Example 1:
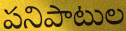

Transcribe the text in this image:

పనిపాటుల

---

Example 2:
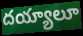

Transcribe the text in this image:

దయ్యాలూ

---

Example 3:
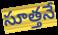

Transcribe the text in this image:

సూత్తనే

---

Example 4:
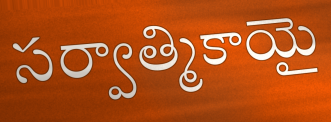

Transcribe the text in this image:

సర్వాత్మికాయై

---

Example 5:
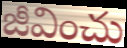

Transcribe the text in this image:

జీవించు